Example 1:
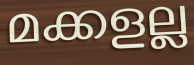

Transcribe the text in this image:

മക്കളല്ല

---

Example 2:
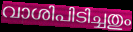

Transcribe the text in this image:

വാശിപിടിച്ചതും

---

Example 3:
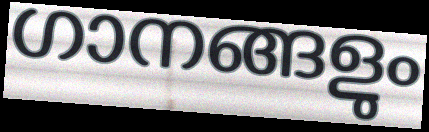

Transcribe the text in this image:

ഗാനങ്ങളും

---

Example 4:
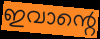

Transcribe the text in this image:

ഇവാന്റെ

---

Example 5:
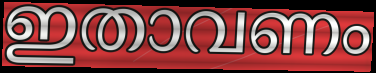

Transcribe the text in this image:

ഇതാവണം